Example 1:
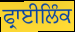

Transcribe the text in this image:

ਫ੍ਰਾਈਲਿੰਕ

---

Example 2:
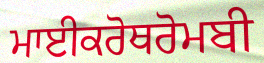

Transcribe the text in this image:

ਮਾਈਕਰੋਥਰੋਮਬੀ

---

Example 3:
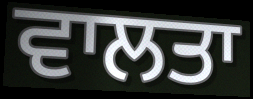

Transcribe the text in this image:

ਵਾਲਤਾ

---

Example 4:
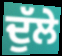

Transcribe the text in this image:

ਦੁੱਲੇ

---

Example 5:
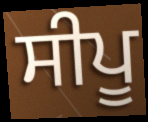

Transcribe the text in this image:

ਸੀਪੂ